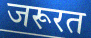
जरूरत